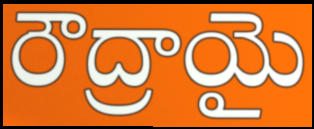
రౌద్రాయై